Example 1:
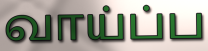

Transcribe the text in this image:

வாய்ப்ப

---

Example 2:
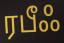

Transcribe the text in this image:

ரபீஃ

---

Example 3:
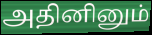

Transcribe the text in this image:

அதினினும்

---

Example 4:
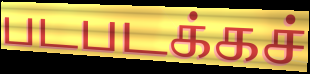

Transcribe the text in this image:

படபடக்கச்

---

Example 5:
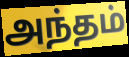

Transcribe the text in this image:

அந்தம்